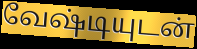
வேஷ்டியுடன்